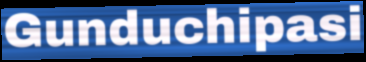
Gunduchipasi